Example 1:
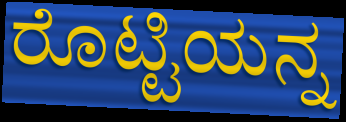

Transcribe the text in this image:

ರೊಟ್ಟಿಯನ್ನ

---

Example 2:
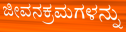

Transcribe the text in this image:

ಜೀವನಕ್ರಮಗಳನ್ನು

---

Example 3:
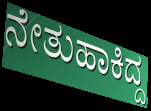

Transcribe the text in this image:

ನೇತುಹಾಕಿದ್ದ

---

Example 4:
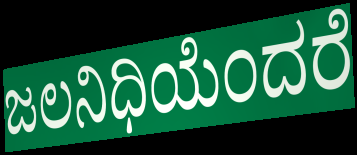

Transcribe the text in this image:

ಜಲನಿಧಿಯೆಂದರೆ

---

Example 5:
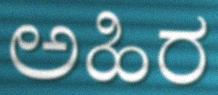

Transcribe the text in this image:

ಅಹಿರ